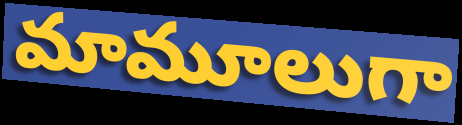
మామూలుగా